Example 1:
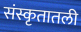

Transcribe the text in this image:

संस्कृतातली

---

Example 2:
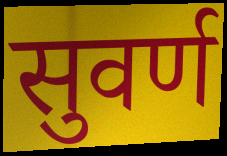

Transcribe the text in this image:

सुवर्ण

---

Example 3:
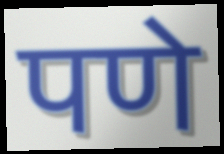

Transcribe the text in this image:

पणे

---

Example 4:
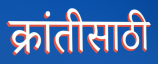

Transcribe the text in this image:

क्रांतीसाठी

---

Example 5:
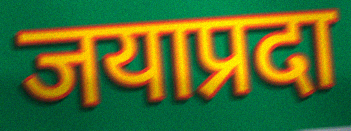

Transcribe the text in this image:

जयाप्रदा